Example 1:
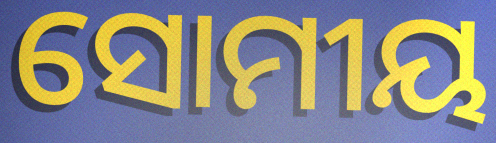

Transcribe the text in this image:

ସୋମୀୟ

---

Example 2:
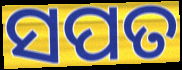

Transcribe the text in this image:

ସପତ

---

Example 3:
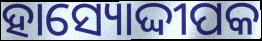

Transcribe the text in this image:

ହାସ୍ୟୋଦ୍ଦୀପକ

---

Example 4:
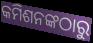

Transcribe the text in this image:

କମିଶନଙ୍କଠାରୁ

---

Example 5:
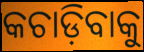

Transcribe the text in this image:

କଚାଡ଼ିବାକୁ